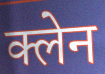
क्लेन